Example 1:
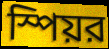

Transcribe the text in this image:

স্পিয়র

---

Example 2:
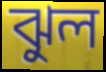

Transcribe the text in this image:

ঝুল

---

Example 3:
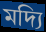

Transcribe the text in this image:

মদ্যি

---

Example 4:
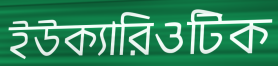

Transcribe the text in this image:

ইউক্যারিওটিক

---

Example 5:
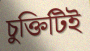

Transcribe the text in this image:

চুক্তিটিই